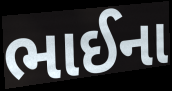
ભાઈના